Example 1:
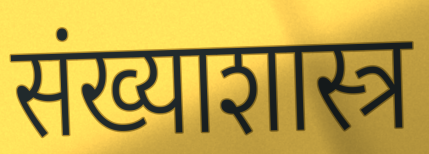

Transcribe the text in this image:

संख्याशास्त्र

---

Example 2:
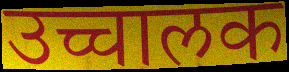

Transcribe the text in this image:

उच्चालक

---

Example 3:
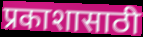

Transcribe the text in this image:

प्रकाशासाठी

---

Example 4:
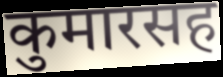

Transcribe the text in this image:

कुमारसह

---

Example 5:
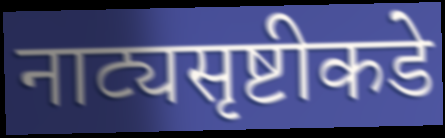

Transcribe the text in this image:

नाट्यसृष्टीकडे